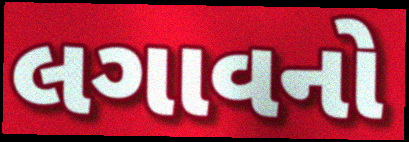
લગાવનો